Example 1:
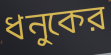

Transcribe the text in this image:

ধনুকের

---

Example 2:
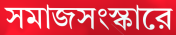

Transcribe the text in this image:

সমাজসংস্কারে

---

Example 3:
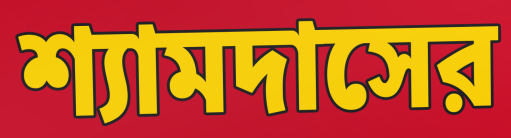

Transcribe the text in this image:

শ্যামদাসের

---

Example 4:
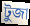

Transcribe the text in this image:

টুজা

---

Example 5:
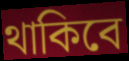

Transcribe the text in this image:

থাকিবে